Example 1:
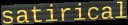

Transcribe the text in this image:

satirical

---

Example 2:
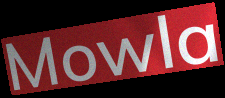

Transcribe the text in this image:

Mowla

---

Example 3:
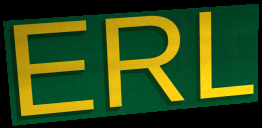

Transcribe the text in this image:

ERL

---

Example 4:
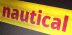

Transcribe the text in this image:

nautical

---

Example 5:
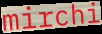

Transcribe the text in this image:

mirchi